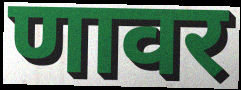
णावर